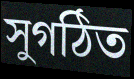
সুগঠিত